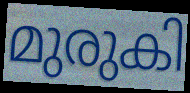
മുരുകി